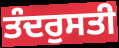
ਤੰਦਰੁਸਤੀ